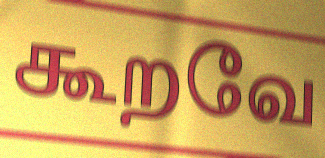
கூறவே